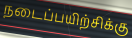
நடைப்பயிற்சிக்கு